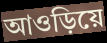
আওড়িয়ে